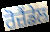
ਰੋਜ਼ੈਂਡੇਲ